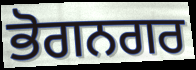
ਭੋਗਨਗਰ